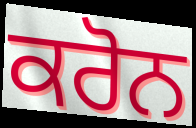
ਕਰੋਨ